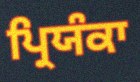
ਪ੍ਰਿਯੰਕਾ